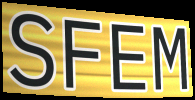
SFEM